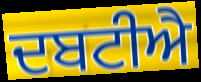
ਦਬਟੀਐ